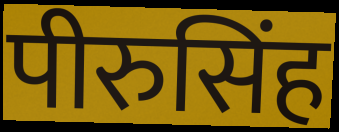
पीरुसिंह